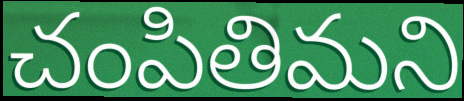
చంపితిమని